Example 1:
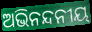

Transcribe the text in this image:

ଅଭିନନ୍ଦନୀୟ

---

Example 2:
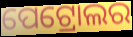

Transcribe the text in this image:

ପେଟ୍ରୋଲର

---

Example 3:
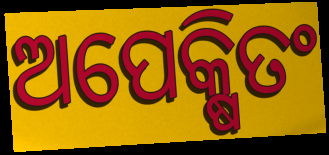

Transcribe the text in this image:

ଅପେକ୍ଷିତଂ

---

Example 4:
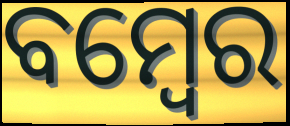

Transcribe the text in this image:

ବମ୍ୱେର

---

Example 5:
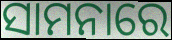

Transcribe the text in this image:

ସାମନାରେ